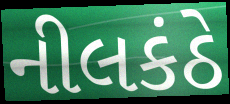
નીલકંઠે